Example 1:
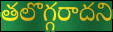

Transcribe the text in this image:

తలొగ్గరాదని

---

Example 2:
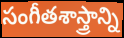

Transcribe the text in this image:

సంగీతశాస్త్రాన్ని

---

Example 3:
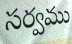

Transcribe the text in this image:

సర్వము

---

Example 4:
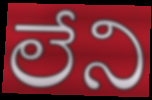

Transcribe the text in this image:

లేని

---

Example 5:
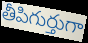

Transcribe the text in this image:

తీపిగుర్తుగా